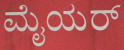
ಮೈಯರ್